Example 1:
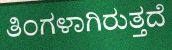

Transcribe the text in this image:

ತಿಂಗಳಾಗಿರುತ್ತದೆ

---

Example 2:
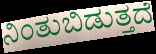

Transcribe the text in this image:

ನಿಂತುಬಿಡುತ್ತದೆ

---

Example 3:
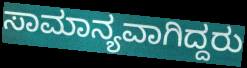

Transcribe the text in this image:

ಸಾಮಾನ್ಯವಾಗಿದ್ದರು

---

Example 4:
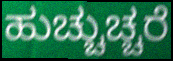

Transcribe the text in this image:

ಹುಚ್ಚುಚ್ಚರೆ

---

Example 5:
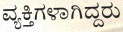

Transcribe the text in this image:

ವ್ಯಕ್ತಿಗಳಾಗಿದ್ದರು